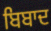
ਬਿਬਾਦ